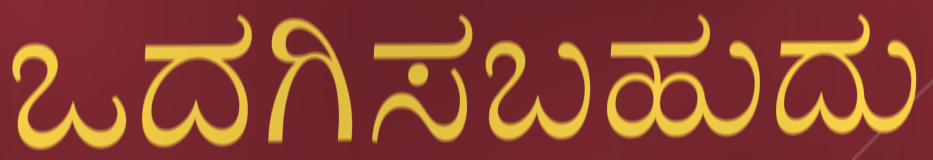
ಒದಗಿಸಬಹುದು